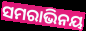
ସମରାଭିନୟ